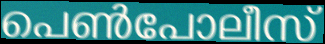
പെൺപോലീസ്